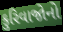
કુરિવાજોનો